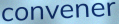
convener